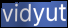
vidyut